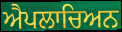
ਐਪਲਾਚਿਅਨ